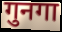
गुनगा